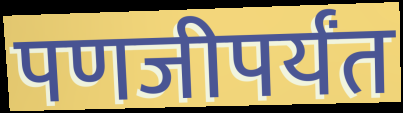
पणजीपर्यंत